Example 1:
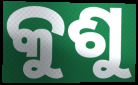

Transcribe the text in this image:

କୁଶୁ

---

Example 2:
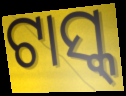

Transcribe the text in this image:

ଟାସ୍କ୍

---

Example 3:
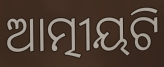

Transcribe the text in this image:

ଆତ୍ମୀୟଟି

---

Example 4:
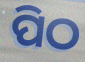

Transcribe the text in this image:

ପିଠ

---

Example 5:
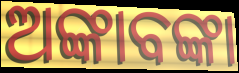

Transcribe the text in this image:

ଅଙ୍କାବଙ୍କା